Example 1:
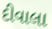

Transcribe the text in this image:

દીવાલા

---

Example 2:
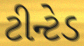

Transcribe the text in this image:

ટીન્ટેડ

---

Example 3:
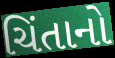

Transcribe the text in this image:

ચિંતાનો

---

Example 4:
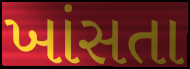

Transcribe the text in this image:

ખાંસતા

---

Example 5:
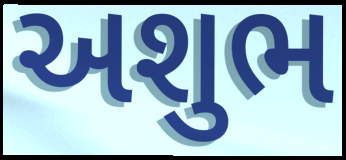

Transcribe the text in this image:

અશુભ